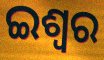
ଇଶ୍ବର